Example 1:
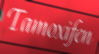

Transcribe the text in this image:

Tamoxifen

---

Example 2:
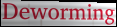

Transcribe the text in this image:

Deworming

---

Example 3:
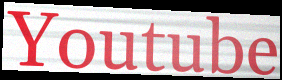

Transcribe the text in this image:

Youtube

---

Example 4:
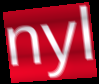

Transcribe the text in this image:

nyl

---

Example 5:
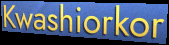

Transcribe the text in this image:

Kwashiorkor